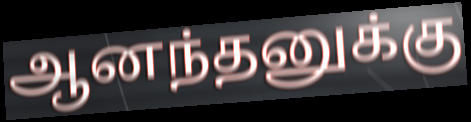
ஆனந்தனுக்கு